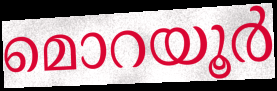
മൊറയൂർ